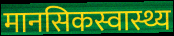
मानसिकस्वास्थ्य